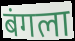
बंगला